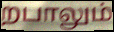
றபாலும்